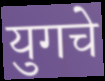
युगचे